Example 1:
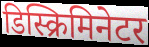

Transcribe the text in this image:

डिस्क्रिमिनेटर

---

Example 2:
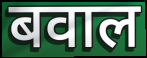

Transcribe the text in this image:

बवाल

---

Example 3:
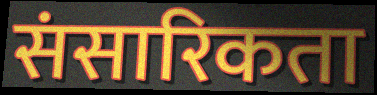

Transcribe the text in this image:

संसारिकता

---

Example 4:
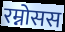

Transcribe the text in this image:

रम्नोसस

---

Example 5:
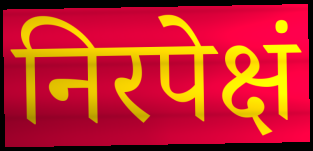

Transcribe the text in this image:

निरपेक्षं